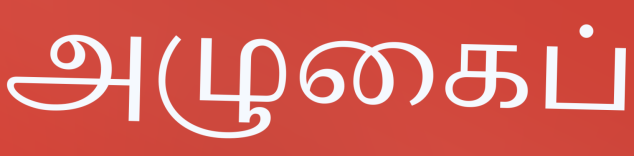
அழுகைப்